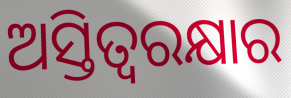
ଅସ୍ତିତ୍ୱରକ୍ଷାର